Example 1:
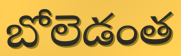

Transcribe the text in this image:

బోలెడంత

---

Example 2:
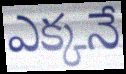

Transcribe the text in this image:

ఎక్కనే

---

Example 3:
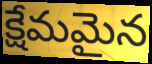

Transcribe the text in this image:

క్షేమమైన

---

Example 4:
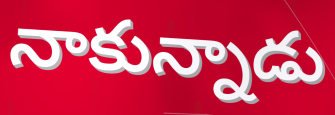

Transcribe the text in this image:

నాకున్నాడు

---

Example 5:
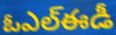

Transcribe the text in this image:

ఓఎల్ఈడీ